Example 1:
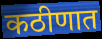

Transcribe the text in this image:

कठीणात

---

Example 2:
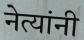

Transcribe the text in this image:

नेत्यांनी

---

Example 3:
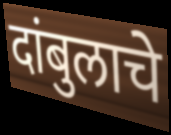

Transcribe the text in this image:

दांबुलाचे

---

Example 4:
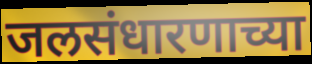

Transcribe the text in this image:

जलसंधारणाच्या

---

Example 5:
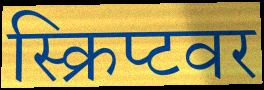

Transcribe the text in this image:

स्क्रिप्टवर